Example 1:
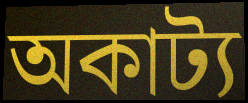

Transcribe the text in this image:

অকাট্য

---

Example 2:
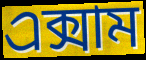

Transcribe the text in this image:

এক্সাম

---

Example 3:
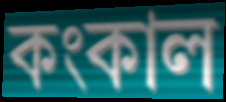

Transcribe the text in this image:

কংকাল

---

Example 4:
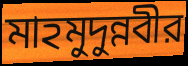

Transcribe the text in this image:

মাহমুদুন্নবীর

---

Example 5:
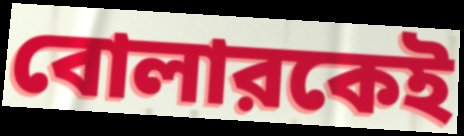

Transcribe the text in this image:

বোলারকেই